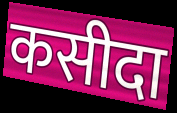
कसीदा